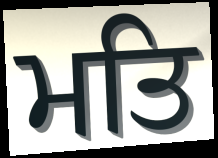
ਮਤਿ